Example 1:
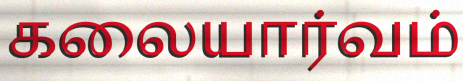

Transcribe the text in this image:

கலையார்வம்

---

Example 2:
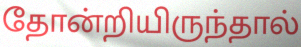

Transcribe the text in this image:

தோன்றியிருந்தால்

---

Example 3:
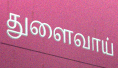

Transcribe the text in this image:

துளைவாய்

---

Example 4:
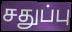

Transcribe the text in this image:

சதுப்பு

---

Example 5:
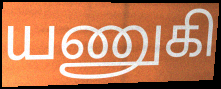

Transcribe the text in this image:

யணுகி